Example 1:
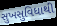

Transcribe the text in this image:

સુખસુવિધાથી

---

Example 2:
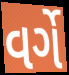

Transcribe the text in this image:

વર્ગે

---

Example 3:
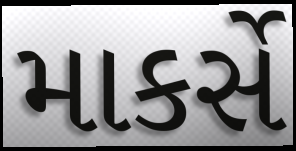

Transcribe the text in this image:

માકર્સે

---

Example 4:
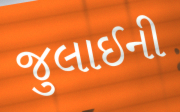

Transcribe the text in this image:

જુલાઈની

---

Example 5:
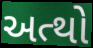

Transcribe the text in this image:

અત્થો